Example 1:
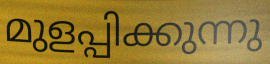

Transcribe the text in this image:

മുളപ്പിക്കുന്നു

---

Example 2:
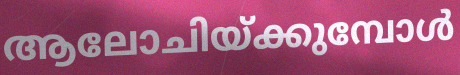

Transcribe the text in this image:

ആലോചിയ്ക്കുമ്പോൾ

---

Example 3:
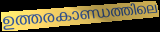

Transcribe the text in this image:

ഉത്തരകാണ്ഡത്തിലെ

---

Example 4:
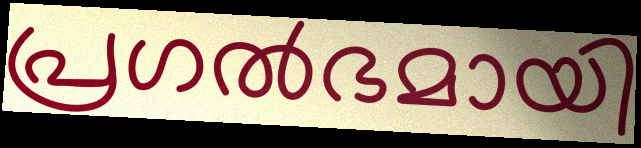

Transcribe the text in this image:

പ്രഗൽഭമായി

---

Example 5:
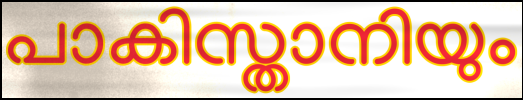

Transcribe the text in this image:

പാകിസ്താനിയും